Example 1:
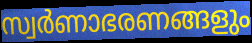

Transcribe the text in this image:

സ്വർണാഭരണങ്ങളും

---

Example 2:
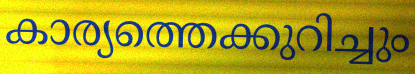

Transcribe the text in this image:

കാര്യത്തെക്കുറിച്ചും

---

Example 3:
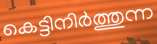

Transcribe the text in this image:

കെട്ടിനിർത്തുന്ന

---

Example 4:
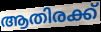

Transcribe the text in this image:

ആതിരക്ക്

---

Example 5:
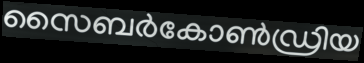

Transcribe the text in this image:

സൈബർകോൺഡ്രിയ